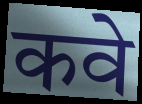
कवे